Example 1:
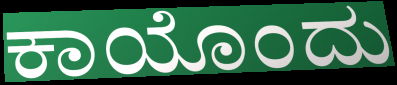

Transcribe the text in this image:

ಕಾಯೊಂದು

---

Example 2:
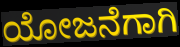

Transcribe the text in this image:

ಯೋಜನೆಗಾಗಿ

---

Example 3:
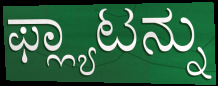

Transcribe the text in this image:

ಫ್ಲ್ಯಾಟನ್ನು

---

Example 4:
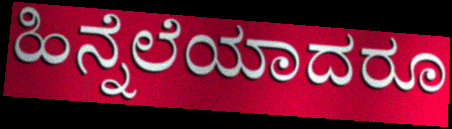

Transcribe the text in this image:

ಹಿನ್ನೆಲೆಯಾದರೂ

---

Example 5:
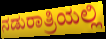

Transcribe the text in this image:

ನಡುರಾತ್ರಿಯಲ್ಲಿ